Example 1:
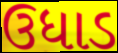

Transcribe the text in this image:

ઉધાડ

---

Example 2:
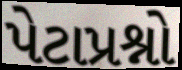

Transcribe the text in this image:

પેટાપ્રશ્નો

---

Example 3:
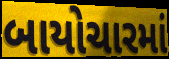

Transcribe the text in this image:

બાયોચારમાં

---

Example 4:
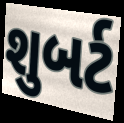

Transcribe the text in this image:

શુબર્ટ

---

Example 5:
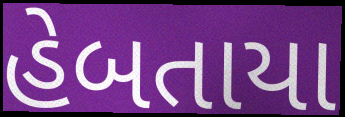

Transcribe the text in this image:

હેબતાયા